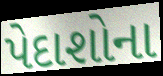
પેદાશોના